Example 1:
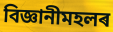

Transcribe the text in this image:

বিজ্ঞানীমহলৰ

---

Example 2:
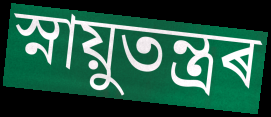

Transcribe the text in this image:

স্নায়ুতন্ত্ৰৰ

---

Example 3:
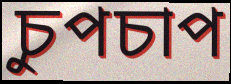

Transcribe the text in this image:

চুপচাপ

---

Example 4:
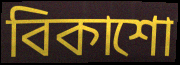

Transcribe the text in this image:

বিকাশো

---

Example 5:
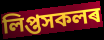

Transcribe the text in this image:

লিপ্তসকলৰ